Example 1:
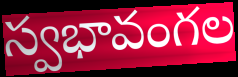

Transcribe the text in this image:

స్వభావంగల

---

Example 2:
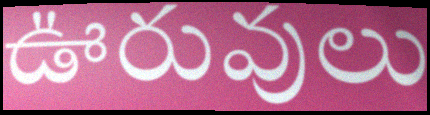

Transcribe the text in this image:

ఊరువులు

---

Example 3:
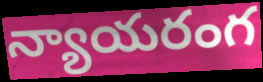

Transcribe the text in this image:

న్యాయరంగ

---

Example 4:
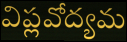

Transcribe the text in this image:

విప్లవోద్యమ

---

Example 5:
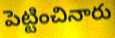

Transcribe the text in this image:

పెట్టించినారు